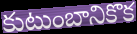
కుటుంబానికొక